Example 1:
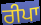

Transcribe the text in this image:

ਰੀਪਾ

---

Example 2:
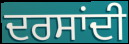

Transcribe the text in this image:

ਦਰਸਾਂਦੀ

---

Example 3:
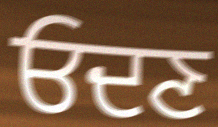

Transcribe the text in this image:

ਓਦਣ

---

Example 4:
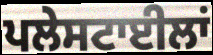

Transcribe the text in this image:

ਪਲੇਸਟਾਈਲਾਂ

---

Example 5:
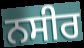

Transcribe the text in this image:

ਨਸੀਰ